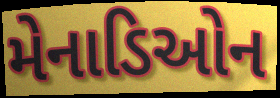
મેનાડિઓન